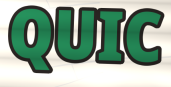
QUIC